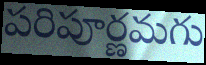
పరిపూర్ణమగు